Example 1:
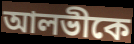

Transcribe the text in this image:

আলভীকে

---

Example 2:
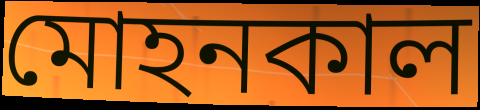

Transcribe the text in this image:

মোহনকাল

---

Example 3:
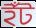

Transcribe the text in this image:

ইঁট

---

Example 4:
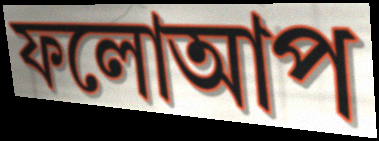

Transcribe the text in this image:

ফলোআপ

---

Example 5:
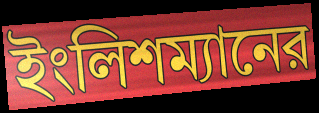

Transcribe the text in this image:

ইংলিশম্যানের